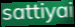
sattiyai